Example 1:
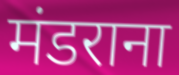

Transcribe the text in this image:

मंडराना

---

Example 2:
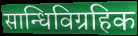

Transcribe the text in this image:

सान्धिविग्रहिक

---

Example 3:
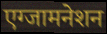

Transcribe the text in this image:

एग्जामनेशन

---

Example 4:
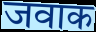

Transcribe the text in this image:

जवाक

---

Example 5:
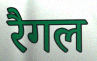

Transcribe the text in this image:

रैगल